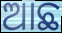
ଆଛ